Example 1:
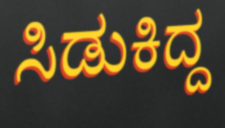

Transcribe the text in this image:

ಸಿಡುಕಿದ್ದ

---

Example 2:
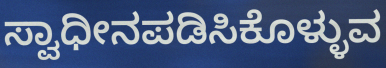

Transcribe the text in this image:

ಸ್ವಾಧೀನಪಡಿಸಿಕೊಳ್ಳುವ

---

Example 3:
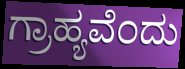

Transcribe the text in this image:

ಗ್ರಾಹ್ಯವೆಂದು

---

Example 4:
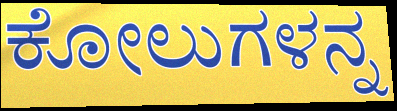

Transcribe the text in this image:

ಕೋಲುಗಳನ್ನ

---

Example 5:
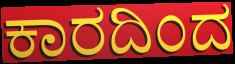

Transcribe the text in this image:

ಕಾರದಿಂದ